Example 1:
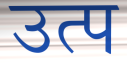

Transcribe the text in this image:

उत्प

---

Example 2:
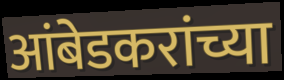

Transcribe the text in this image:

आंबेडकरांच्या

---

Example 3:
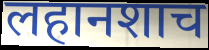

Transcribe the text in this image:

लहानशाच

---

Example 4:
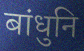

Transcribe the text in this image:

बांधुनि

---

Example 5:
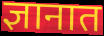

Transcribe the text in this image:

ज्ञानात